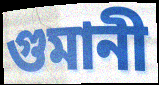
গুমানী